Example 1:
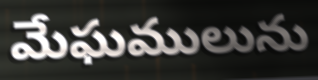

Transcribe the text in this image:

మేఘములును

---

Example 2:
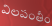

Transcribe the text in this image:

విలపంతీం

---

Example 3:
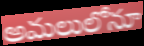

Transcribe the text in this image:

అమలులోనూ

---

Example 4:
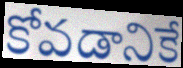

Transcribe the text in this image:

కోవడానికే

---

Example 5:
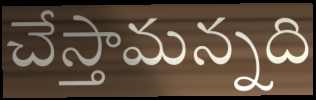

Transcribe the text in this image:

చేస్తామన్నది